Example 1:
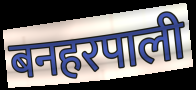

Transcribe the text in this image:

बनहरपाली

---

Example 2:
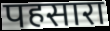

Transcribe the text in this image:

पहसारा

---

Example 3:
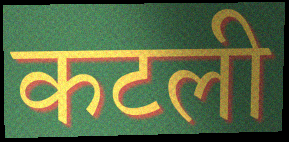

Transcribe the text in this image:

कटली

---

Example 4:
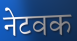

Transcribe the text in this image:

नेटवक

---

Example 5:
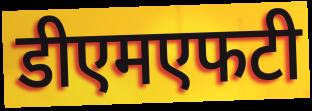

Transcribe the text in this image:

डीएमएफटी